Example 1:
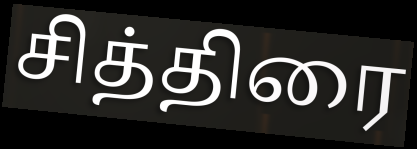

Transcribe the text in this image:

சித்திரை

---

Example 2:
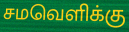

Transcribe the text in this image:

சமவெளிக்கு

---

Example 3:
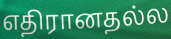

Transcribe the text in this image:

எதிரானதல்ல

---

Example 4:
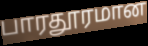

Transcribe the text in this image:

பாரதூரமான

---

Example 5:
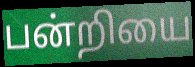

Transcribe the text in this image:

பன்றியை